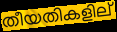
തീയതികളില്